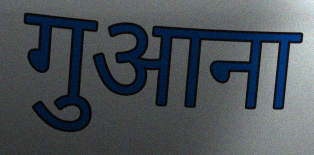
गुआना